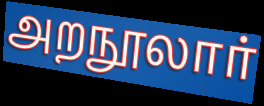
அறநூலார்